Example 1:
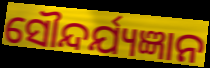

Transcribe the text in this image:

ସୌନ୍ଦର୍ଯ୍ୟଜ୍ଞାନ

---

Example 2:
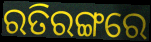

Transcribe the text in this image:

ରତିରଙ୍ଗରେ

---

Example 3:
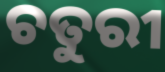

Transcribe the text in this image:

ଚତୁରୀ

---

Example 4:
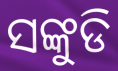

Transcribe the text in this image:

ସଙ୍କୁଡି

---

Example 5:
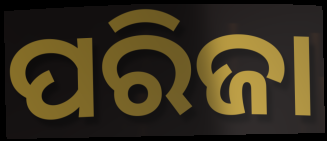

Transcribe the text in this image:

ପରିଜା